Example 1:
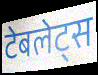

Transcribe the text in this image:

टेबलेट्स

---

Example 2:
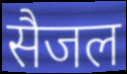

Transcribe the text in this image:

सैजल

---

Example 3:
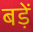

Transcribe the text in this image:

बड़ें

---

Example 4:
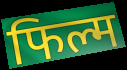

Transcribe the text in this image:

फिल्म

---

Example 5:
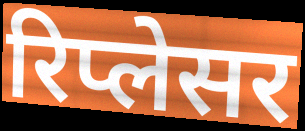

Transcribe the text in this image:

रिप्लेसर